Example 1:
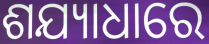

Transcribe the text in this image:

ଶଯ୍ୟାଧାରେ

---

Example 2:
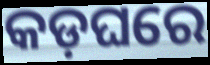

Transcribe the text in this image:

କଡ଼ଘରେ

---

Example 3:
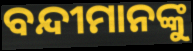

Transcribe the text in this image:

ବନ୍ଦୀମାନଙ୍କୁ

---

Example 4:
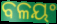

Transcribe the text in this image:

ବଳୟଂ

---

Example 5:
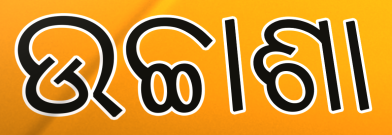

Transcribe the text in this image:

ଉଚ୍ଚାଶା